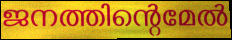
ജനത്തിന്റെമേൽ